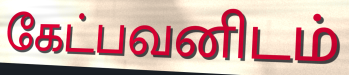
கேட்பவனிடம்